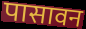
पासावन